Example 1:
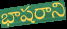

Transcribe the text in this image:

భాషరాని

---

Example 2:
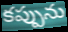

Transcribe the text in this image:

కప్పును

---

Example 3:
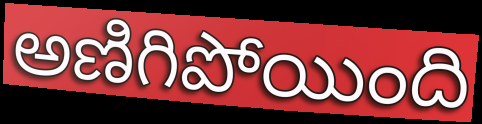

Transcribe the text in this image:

అణిగిపోయింది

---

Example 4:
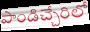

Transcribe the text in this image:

పాండిచ్చేరిలో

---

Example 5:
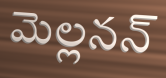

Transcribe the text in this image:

మెల్లనన్